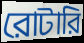
রোটারি